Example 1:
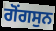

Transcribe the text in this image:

ਗੋਂਗਸੁਨ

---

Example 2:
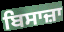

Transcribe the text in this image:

ਬਿਸਾਜ਼ਾ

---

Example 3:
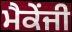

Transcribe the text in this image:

ਮੈਕੇਂਜੀ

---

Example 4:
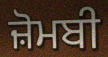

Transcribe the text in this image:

ਜ਼ੋਮਬੀ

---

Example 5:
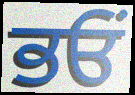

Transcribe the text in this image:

ਭਓਂ